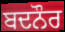
ਬਦਨੌਰ